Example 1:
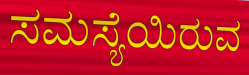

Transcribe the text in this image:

ಸಮಸ್ಯೆಯಿರುವ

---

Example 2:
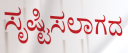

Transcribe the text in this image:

ಸೃಷ್ಟಿಸಲಾಗದ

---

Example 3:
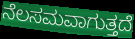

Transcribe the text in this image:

ನೆಲಸಮವಾಗುತ್ತದೆ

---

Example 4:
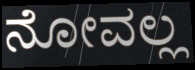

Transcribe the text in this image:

ನೋವಲ್ಲ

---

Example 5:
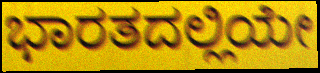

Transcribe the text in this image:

ಭಾರತದಲ್ಲಿಯೇ